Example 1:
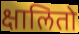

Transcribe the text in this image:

क्षालितो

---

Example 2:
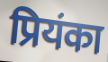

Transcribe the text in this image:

प्रियंका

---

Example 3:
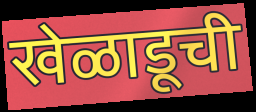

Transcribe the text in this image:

खेळाडूची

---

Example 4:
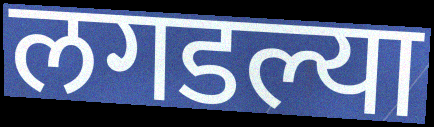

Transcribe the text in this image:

लगडल्या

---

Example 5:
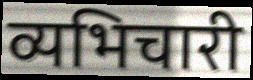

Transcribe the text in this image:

व्यभिचारी